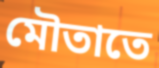
মৌতাতে